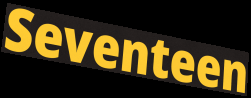
Seventeen